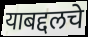
याबद्दलचे